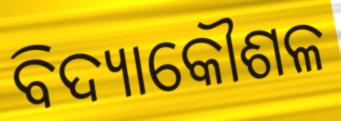
ବିଦ୍ୟାକୌଶଳ